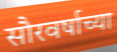
सौरवर्षाच्या